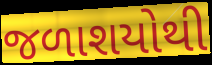
જળાશયોથી